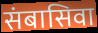
संबासिवा